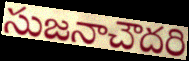
సుజనాచౌదరి